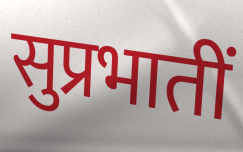
सुप्रभातीं